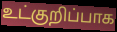
உட்குறிப்பாக